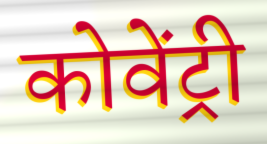
कोवेंट्री